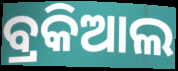
ବ୍ରକିଆଲ